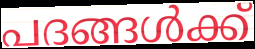
പദങ്ങൾക്ക്